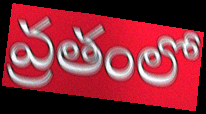
వ్రతంలో